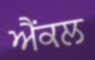
ਐਂਕਲ